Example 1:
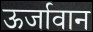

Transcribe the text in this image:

ऊर्जावान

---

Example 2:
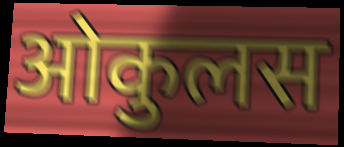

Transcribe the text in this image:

ओकुलस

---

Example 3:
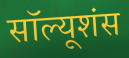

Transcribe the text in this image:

सॉल्यूशंस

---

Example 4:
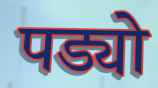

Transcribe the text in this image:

पड्यो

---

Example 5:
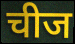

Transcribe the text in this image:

चीज